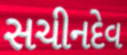
સચીનદેવ